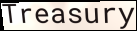
Treasury